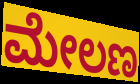
ಮೇಲಣ